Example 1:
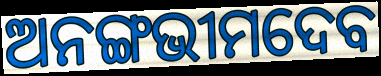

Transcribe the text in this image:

ଅନଙ୍ଗଭୀମଦେବ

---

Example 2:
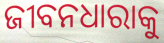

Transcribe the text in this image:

ଜୀବନଧାରାକୁ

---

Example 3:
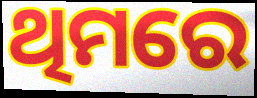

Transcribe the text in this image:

ଥିମରେ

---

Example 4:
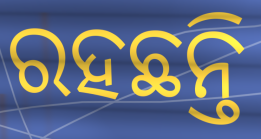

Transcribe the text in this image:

ରହଛନ୍ତି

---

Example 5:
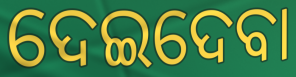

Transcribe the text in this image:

ଦେଇଦେବା